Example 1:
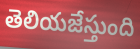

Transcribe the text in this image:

తెలియజేస్తుంది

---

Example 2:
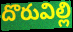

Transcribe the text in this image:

దొరువిల్లి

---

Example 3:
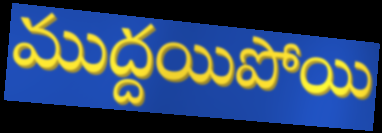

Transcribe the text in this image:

ముద్దయిపోయి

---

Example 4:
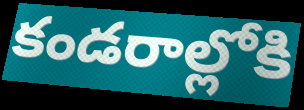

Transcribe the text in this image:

కండరాల్లోకి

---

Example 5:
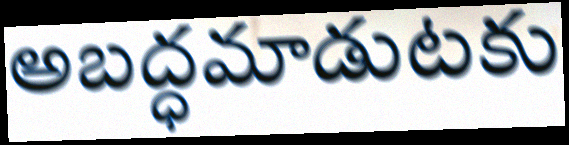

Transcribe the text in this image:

అబద్ధమాడుటకు